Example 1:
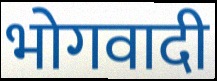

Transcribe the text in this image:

भोगवादी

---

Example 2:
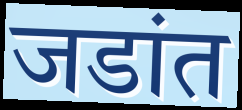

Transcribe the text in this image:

जडांत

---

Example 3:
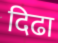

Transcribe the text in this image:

दिढा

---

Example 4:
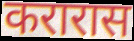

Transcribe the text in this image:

करारास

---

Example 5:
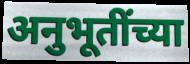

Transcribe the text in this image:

अनुभूतींच्या